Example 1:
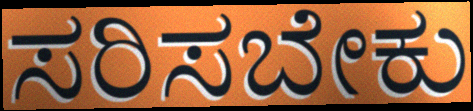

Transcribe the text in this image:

ಸರಿಸಬೇಕು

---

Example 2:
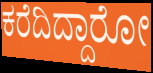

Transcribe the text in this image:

ಕರೆದಿದ್ದಾರೋ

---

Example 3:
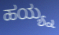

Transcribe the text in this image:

ಹಯ್ಯ್ನ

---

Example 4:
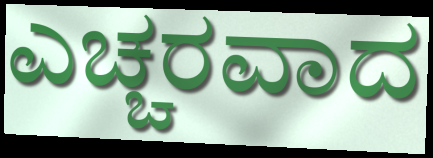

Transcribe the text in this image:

ಎಚ್ಚರವಾದ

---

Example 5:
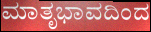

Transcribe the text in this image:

ಮಾತೃಭಾವದಿಂದ